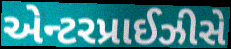
એન્ટરપ્રાઈઝીસે